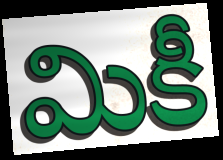
మికీ